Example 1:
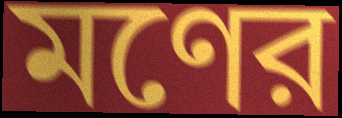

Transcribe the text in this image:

মণের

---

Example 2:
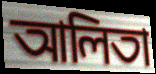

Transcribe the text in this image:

আলিতা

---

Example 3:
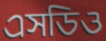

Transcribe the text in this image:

এসডিও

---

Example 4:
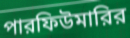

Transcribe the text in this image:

পারফিউমারির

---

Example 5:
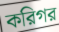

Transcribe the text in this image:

করিগর